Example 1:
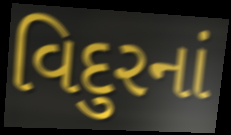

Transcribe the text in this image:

વિદુરનાં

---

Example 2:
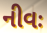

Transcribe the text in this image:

નીવઃ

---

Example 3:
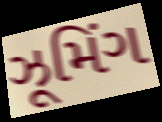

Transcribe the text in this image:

ઝૂમિંગ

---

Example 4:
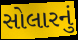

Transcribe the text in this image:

સોલારનું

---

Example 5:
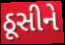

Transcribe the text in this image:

ઠૂસીને